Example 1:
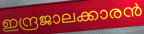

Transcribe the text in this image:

ഇന്ദ്രജാലക്കാരൻ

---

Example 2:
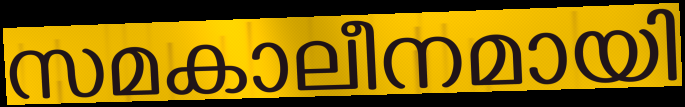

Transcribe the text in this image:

സമകാലീനമായി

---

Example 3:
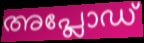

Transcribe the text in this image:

അപ്ലോഡ്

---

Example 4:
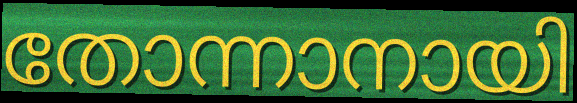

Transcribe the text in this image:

തോന്നാനായി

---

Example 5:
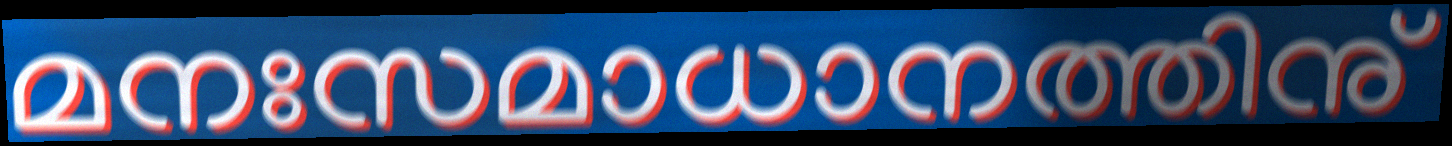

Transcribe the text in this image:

മനഃസമാധാനത്തിനു്